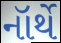
નૉર્થે